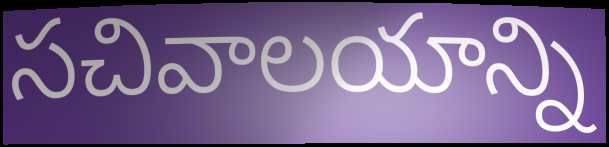
సచివాలయాన్ని